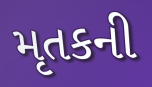
મૃતકની